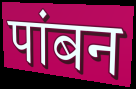
पांबन